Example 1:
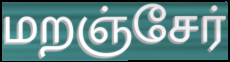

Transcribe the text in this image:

மறஞ்சேர்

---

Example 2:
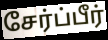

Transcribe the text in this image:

சேர்ப்பீர்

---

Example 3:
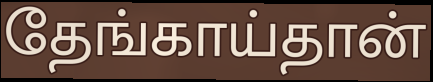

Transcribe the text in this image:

தேங்காய்தான்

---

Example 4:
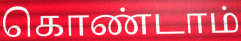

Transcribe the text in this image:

கொண்டாம்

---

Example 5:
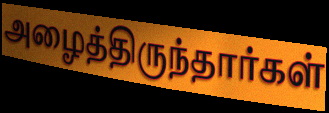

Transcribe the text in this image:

அழைத்திருந்தார்கள்